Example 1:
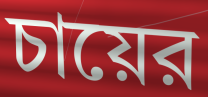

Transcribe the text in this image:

চায়ের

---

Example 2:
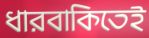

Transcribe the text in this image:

ধারবাকিতেই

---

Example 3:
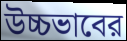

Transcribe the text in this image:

উচ্চভাবের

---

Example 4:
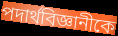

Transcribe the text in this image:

পদার্থবিজ্ঞানীকে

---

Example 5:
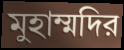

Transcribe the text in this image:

মুহাম্মদির